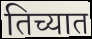
तिच्यात